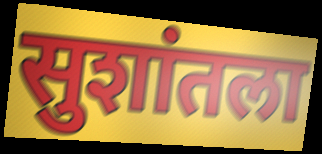
सुशांतला